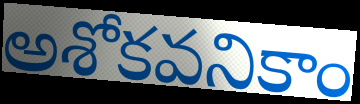
అశోకవనికాం